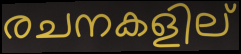
രചനകളില്